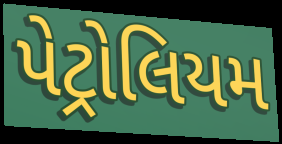
પેટ્રોલિયમ